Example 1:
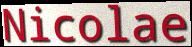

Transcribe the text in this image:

Nicolae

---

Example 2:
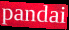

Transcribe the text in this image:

pandai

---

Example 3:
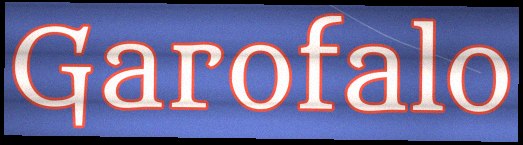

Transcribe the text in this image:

Garofalo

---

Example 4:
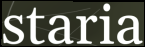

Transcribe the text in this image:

staria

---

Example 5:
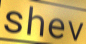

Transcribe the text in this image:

shev